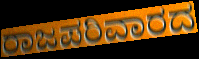
ರಾಜಪರಿವಾರದ